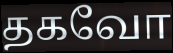
தகவோ